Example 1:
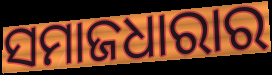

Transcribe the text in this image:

ସମାଜଧାରାର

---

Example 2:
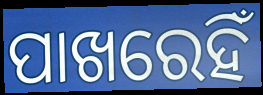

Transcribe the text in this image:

ପାଖରେହିଁ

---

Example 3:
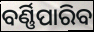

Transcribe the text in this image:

ବର୍ଣ୍ଣିପାରିବ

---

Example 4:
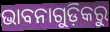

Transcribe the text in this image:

ଭାବନାଗୁଡ଼ିକରୁ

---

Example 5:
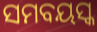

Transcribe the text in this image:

ସମବୟସ୍କ